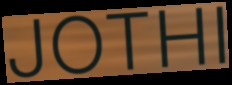
JOTHI